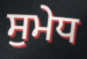
ਸੁਮੇਧ